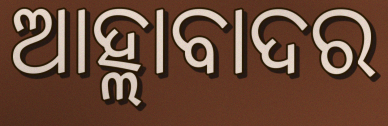
ଆହ୍ଲାବାଦର